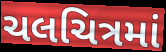
ચલચિત્રમાં